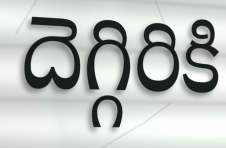
దెగ్గిరికి